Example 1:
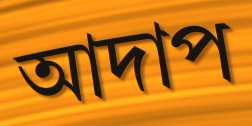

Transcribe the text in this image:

আদাপ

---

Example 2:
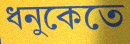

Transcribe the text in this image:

ধনুকেতে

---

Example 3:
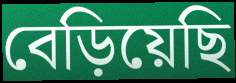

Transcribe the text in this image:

বেড়িয়েছি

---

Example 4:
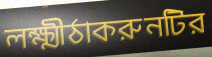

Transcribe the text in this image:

লক্ষ্মীঠাকরুনটির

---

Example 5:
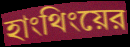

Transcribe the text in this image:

হাংথিংয়ের